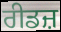
ਰੀਡਜ਼